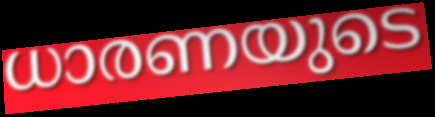
ധാരണയുടെ